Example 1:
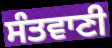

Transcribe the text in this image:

ਸੰਤਵਾਣੀ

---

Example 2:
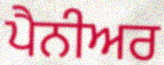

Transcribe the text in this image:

ਪੈਨੀਅਰ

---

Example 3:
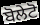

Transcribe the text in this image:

ਬੋਲੇਟੋ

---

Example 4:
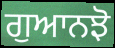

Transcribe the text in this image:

ਗੁਆਨਝੋ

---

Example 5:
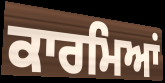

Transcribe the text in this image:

ਕਾਰਮਿਆਂ